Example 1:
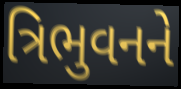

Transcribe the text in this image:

ત્રિભુવનને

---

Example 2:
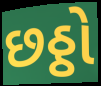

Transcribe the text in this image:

છઠ્ઠો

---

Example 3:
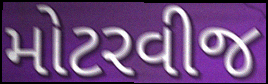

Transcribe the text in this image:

મોટરવીજ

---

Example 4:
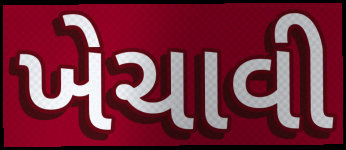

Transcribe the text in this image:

ખેચાવી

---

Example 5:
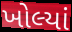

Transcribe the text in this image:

ખોલ્યાં